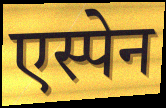
एस्पेन